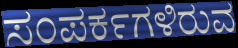
ಸಂಪರ್ಕಗಳಿರುವ